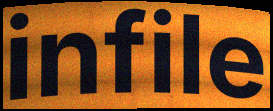
infile